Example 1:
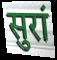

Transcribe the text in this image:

सुरां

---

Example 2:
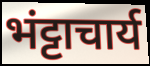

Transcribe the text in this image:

भंट्टाचार्य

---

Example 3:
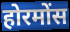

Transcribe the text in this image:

होरमोंस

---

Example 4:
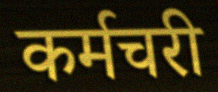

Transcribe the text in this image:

कर्मचरी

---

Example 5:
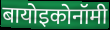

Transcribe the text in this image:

बायोइकोनॉमी